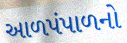
આળપંપાળનો